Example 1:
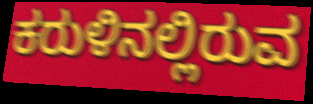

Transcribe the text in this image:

ಕರುಳಿನಲ್ಲಿರುವ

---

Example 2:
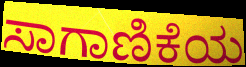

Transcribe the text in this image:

ಸಾಗಾಣಿಕೆಯ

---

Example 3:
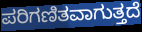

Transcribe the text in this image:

ಪರಿಗಣಿತವಾಗುತ್ತದೆ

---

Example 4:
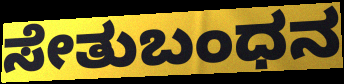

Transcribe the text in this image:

ಸೇತುಬಂಧನ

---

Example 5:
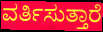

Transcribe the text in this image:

ವರ್ತಿಸುತ್ತಾರೆ